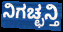
ನಿಗಚ್ಛನ್ತಿ